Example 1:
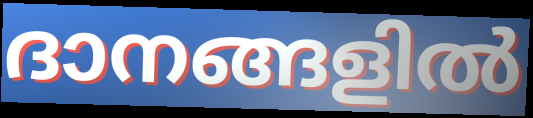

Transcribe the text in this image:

ദാനങ്ങളിൽ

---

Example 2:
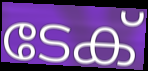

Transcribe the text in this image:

ടേക്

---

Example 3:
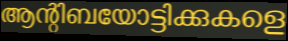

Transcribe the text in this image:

ആന്റിബയോട്ടിക്കുകളെ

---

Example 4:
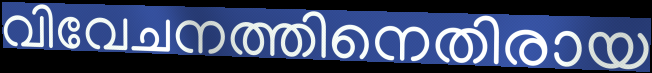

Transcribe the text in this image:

വിവേചനത്തിനെതിരായ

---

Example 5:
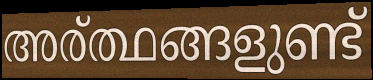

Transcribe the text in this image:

അര്ത്ഥങ്ങളുണ്ട്